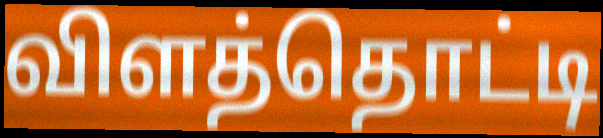
விளத்தொட்டி